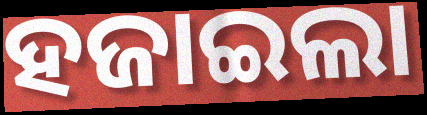
ହଜାଇଲା